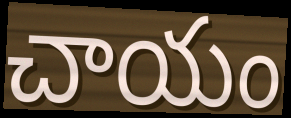
చాయం